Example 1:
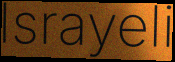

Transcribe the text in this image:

Israyeli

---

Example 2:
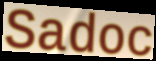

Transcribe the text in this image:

Sadoc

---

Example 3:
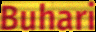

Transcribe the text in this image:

Buhari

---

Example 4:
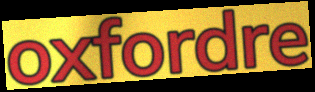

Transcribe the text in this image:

oxfordre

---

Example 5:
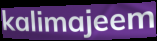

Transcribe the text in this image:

kalimajeem